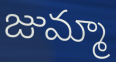
జుమ్మా